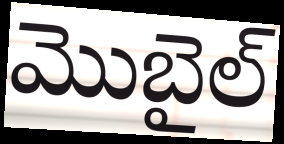
మొబైల్